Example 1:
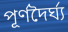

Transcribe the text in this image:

পূৰ্ণদৈৰ্ঘ্য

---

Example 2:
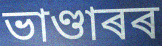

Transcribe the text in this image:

ভাণ্ডাৰৰ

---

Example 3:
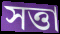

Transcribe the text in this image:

সত্তা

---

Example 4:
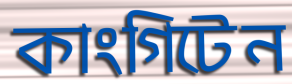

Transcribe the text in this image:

কাংগিটেন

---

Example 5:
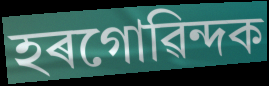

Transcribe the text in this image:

হৰগোৱিন্দক